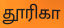
தூரிகா